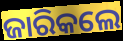
ଜାରିକଲେ